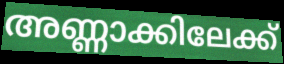
അണ്ണാക്കിലേക്ക്